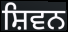
ਸ਼ਿਵਨ